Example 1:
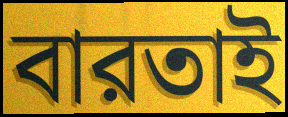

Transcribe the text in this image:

বারতাই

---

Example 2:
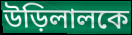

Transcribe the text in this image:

উড়িলালকে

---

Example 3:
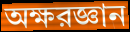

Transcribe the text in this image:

অক্ষরজ্ঞান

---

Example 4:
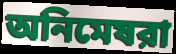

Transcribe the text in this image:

অনিমেষরা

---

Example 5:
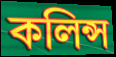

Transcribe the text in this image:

কলিন্স